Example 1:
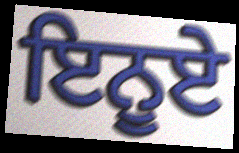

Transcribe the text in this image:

ਇਨੂਏ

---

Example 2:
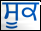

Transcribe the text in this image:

ਸੂਕ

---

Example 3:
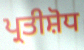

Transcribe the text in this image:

ਪ੍ਰਤੀਸ਼ੋਧ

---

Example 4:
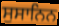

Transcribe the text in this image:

ਸੁਸਾਨਿਨ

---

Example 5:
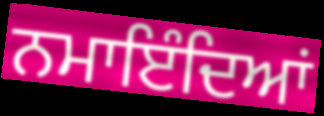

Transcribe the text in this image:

ਨਮਾਇੰਦਿਆਂ